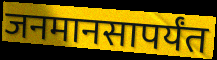
जनमानसापर्यंत